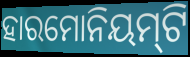
ହାରମୋନିୟମ୍‍ଟି